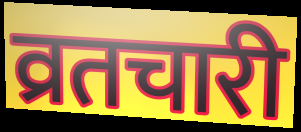
व्रतचारी